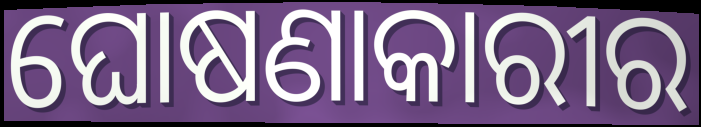
ଘୋଷଣାକାରୀର